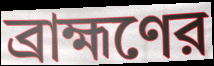
ব্রাহ্মণের